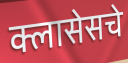
क्लासेसचे